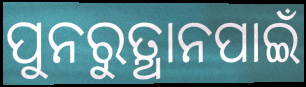
ପୁନରୁତ୍ଥାନପାଇଁ